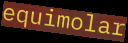
equimolar